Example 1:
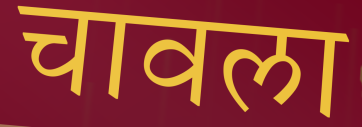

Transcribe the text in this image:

चावला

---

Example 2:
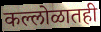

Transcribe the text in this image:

कल्लोळातही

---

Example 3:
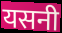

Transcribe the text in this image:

यसनी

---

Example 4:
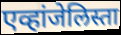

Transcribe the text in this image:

एव्हांजेलिस्ता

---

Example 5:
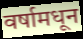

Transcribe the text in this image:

वर्षामधून